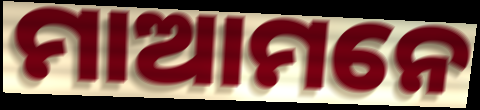
ମାଆମନେ